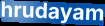
hrudayam